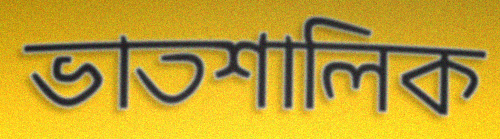
ভাতশালিক